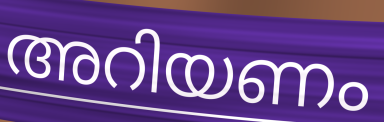
അറിയണം